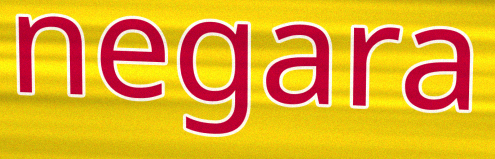
negara